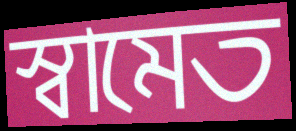
স্বামেত